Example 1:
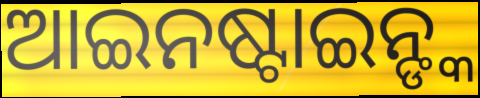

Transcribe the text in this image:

ଆଇନଷ୍ଟାଇନ୍ଙ୍କ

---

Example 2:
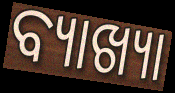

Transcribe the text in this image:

ବ୍ୟାଖ୍ୟା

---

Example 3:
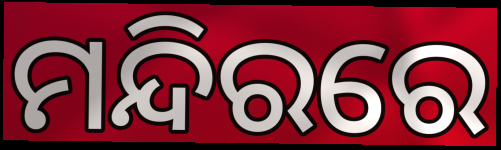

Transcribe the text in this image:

ମନ୍ଦିରରେ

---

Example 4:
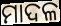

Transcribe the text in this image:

ମାଦଳ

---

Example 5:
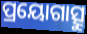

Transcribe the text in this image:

ପ୍ରୟୋଗାତ୍ସୁ